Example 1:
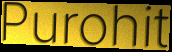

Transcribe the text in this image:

Purohit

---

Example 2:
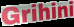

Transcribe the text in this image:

Grihini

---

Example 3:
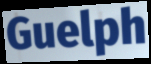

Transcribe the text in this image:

Guelph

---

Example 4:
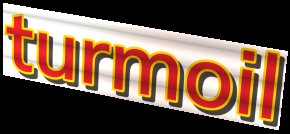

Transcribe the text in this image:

turmoil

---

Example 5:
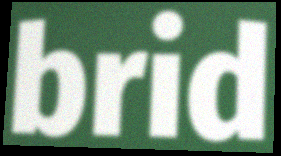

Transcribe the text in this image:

brid